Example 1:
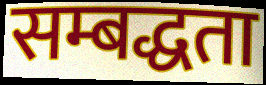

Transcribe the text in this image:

सम्‍बद्धता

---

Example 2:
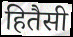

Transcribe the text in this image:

हितैसी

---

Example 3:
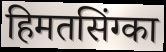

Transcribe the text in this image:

हिमतसिंग्का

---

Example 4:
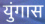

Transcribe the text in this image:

युंगास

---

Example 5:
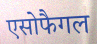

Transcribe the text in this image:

एसोफैगल